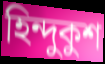
হিন্দুকুশ